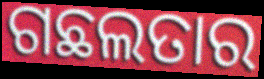
ଗଛଲତାର